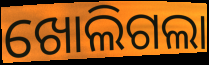
ଖୋଲିଗଲା